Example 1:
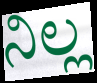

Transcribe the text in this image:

ನಿಲ್ಲ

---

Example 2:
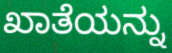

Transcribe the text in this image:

ಖಾತೆಯನ್ನು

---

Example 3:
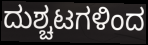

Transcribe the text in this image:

ದುಶ್ಚಟಗಳಿಂದ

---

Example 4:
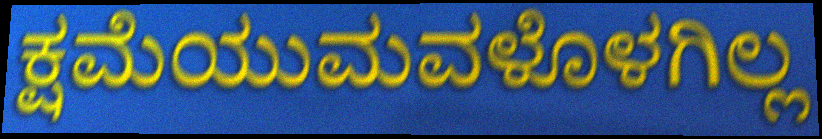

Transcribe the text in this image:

ಕ್ಷಮೆಯುಮವಳೊಳಗಿಲ್ಲ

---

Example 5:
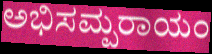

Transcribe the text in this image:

ಅಭಿಸಮ್ಪರಾಯಂ